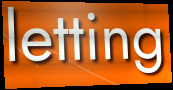
letting